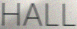
HALL